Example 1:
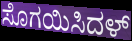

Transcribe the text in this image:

ಸೊಗಯಿಸಿದಳ್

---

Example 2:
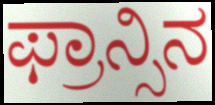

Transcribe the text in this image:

ಫ್ರಾನ್ಸಿನ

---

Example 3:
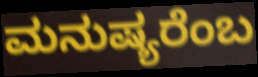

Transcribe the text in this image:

ಮನುಷ್ಯರೆಂಬ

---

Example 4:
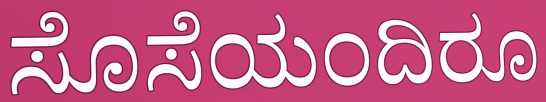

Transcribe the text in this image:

ಸೊಸೆಯಂದಿರೂ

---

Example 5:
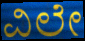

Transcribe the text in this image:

ವಿಲೇ